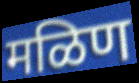
मळिण